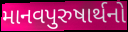
માનવપુરુષાર્થનો